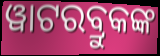
ୱାଟରବ୍ରୁକଙ୍କ